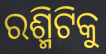
ରଶ୍ମିଟିକୁ